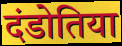
दंडोतिया